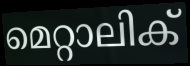
മെറ്റാലിക്